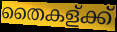
തൈകള്ക്ക്